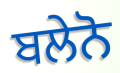
ਬਲੇਨੋ